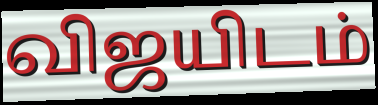
விஜயிடம்